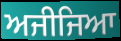
ਅਜੀਜਿਆ